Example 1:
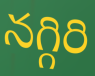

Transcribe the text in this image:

నగ్గిరి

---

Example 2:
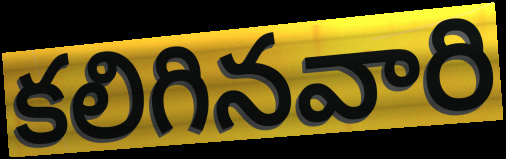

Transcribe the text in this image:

కలిగినవారి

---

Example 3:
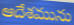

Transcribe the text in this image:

ఆదేశమును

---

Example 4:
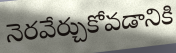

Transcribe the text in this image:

నెరవేర్చుకోవడానికి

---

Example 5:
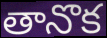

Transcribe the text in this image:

తానొక